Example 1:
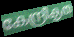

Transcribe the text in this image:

കേന്ദ്രീകൃത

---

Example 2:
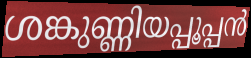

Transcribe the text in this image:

ശങ്കുണ്ണിയപ്പൂപ്പൻ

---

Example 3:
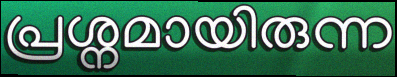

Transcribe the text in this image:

പ്രശ്നമായിരുന്ന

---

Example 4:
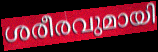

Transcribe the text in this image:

ശരീരവുമായി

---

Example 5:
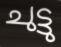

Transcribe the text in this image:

ചുട്ടു